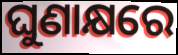
ଘୁଣାକ୍ଷରେ